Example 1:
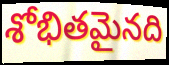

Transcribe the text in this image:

శోభితమైనది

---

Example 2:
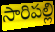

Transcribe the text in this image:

సారిపల్లి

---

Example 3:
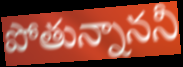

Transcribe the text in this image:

పోతున్నాననీ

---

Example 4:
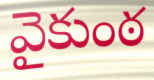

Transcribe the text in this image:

వైకుంఠ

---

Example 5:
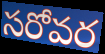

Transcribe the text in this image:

సరోవర